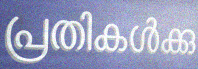
പ്രതികൾക്കു